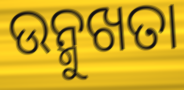
ଉନ୍ମୁଖତା